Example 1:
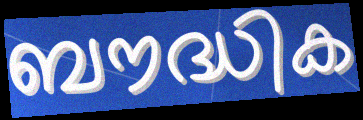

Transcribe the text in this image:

ബൗദ്ധിക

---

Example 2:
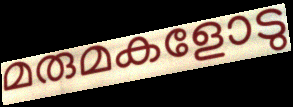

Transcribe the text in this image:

മരുമകളോടു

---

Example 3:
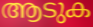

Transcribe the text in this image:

ആടുക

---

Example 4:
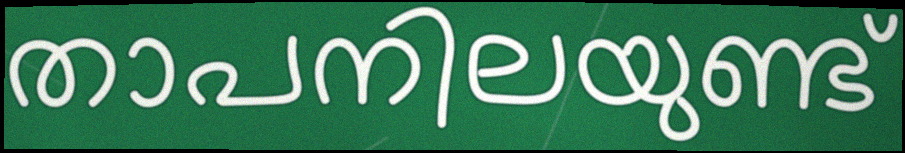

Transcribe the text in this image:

താപനിലയുണ്ട്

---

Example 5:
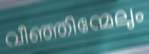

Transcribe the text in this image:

വീഞ്ഞിന്മേലും